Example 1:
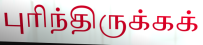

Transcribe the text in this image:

புரிந்திருக்கக்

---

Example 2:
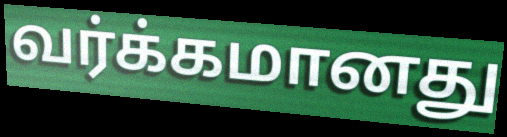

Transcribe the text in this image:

வர்க்கமானது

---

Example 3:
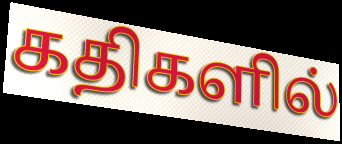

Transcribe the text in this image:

கதிகளில்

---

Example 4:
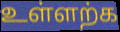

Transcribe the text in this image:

உள்ளற்க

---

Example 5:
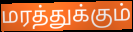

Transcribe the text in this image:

மரத்துக்கும்